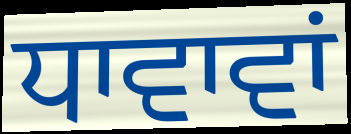
ਧਾਵਾਵਾਂ